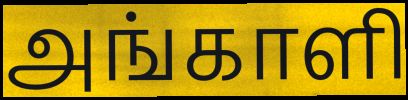
அங்காளி